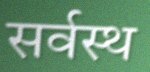
सर्वस्थ